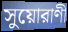
সুয়োরাণী